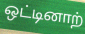
ஒட்டினாற்